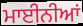
ਮਾਈਨੀਆਂ